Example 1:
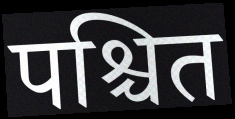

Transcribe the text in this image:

पश्चित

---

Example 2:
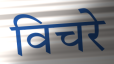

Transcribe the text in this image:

विचरे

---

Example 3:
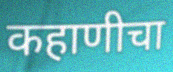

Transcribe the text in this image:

कहाणीचा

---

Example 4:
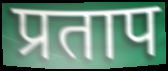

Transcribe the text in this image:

प्रताप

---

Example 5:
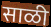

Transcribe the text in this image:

साळी